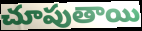
చూపుతాయి